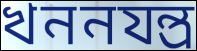
খননযন্ত্র